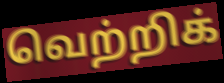
வெற்றிக்